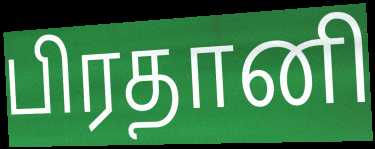
பிரதானி